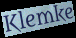
Klemke